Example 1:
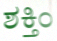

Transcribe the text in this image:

ಶಕ್ತಿಂ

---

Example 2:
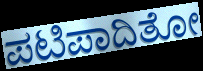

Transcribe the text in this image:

ಪಟಿಪಾದಿತೋ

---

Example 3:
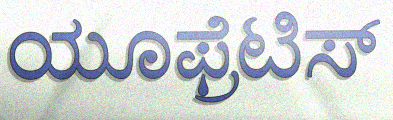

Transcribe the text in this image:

ಯೂಫ್ರೆಟಿಸ್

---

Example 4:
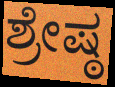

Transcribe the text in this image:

ಶ್ರೇಷ್ಠ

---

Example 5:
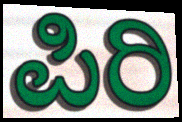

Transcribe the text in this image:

ಪಿರಿ